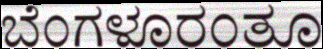
ಬೆಂಗಳೂರಂತೂ